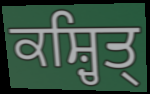
ਕਸ਼੍ਚਿਤ੍